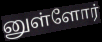
னுள்ளோர்